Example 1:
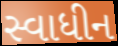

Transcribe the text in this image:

સ્વાધીન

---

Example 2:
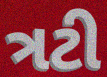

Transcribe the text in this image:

ત્રટી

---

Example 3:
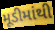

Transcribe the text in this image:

મૂડીમાંથી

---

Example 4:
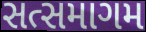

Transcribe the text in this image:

સત્સમાગમ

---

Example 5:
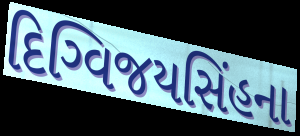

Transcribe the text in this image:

દિગ્વિજયસિંહના